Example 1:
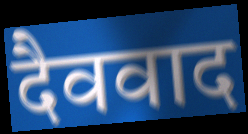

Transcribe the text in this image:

दैववाद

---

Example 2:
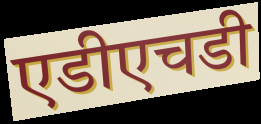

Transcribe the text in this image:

एडीएचडी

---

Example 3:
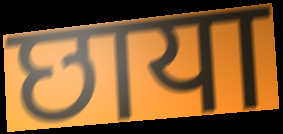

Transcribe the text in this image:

छाया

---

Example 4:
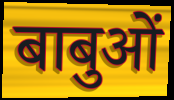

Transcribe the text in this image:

बाबुओं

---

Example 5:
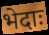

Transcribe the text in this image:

भेदाः